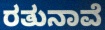
ರತುನಾವೆ